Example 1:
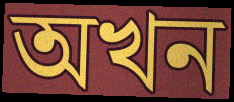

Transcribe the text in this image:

অখন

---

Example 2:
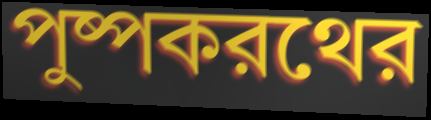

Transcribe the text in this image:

পুষ্পকরথের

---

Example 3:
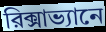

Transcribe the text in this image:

রিক্সাভ্যানে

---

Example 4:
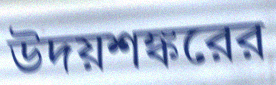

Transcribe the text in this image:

উদয়শঙ্করের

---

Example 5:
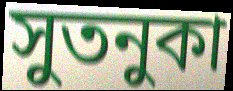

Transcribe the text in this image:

সুতনুকা